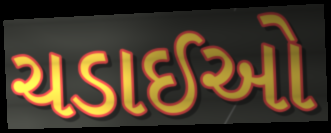
ચડાઈઓ